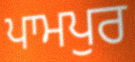
ਪਾਮਪੁਰ